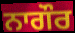
ਨਾਗੌਰ